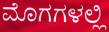
ಮೊಗಗಳಲ್ಲಿ